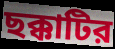
ছক্কাটির